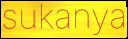
sukanya